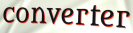
converter